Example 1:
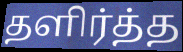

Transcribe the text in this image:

தளிர்த்த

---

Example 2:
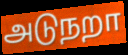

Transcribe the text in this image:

அடுநறா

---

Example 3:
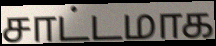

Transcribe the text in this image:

சாட்டமாக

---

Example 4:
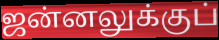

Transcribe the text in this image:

ஜன்னலுக்குப்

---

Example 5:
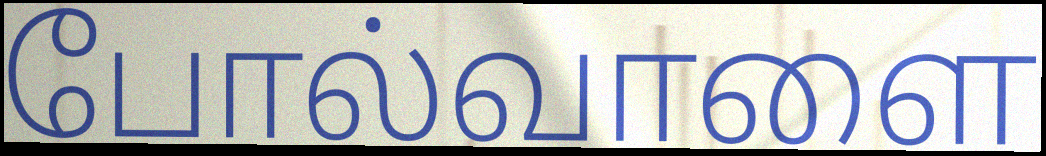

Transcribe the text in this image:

போல்வாளை